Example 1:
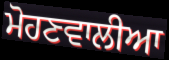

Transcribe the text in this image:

ਮੋਹਣਵਾਲੀਆ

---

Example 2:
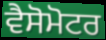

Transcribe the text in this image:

ਵੈਸੋਮੋਟਰ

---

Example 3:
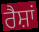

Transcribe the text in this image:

ਰੈਸ਼ਾਂ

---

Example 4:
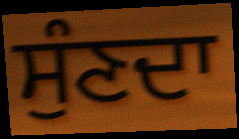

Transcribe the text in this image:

ਸੁੰਣਦਾ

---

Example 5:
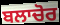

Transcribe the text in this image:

ਬਲਾਚੋਰ